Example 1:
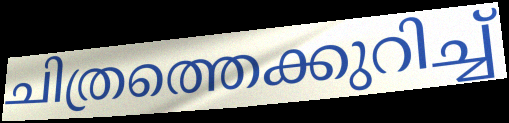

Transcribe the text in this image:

ചിത്രത്തെക്കുറിച്ച്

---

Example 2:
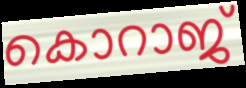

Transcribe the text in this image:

കൊറാജ്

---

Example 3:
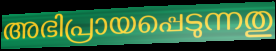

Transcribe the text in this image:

അഭിപ്രായപ്പെടുന്നതു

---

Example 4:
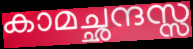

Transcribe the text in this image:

കാമച്ഛന്ദസ്സ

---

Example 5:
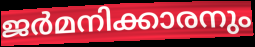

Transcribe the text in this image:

ജർമനിക്കാരനും